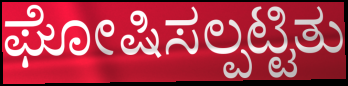
ಘೋಷಿಸಲ್ಪಟ್ಟಿತು